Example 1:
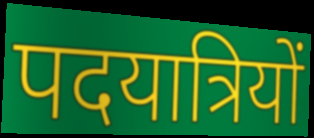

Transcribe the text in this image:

पदयात्रियों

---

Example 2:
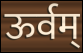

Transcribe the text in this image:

ऊर्वम्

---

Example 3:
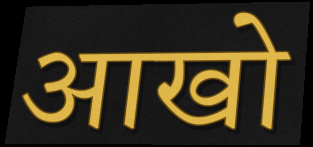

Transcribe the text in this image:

आखो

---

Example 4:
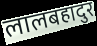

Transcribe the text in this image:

लालबहादुर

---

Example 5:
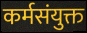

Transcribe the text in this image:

कर्मसंयुक्त